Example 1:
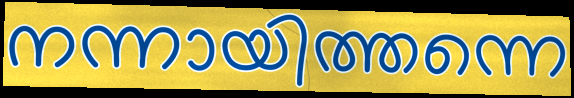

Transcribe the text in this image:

നന്നായിത്തന്നെ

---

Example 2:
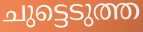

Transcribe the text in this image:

ചുട്ടെടുത്ത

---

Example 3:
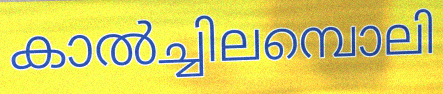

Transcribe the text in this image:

കാൽച്ചിലമ്പൊലി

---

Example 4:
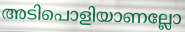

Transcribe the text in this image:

അടിപൊളിയാണല്ലോ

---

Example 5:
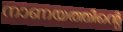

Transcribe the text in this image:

നാണയത്തിന്റെ